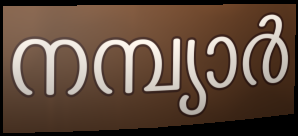
നമ്പ്യാർ